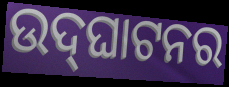
ଉଦ୍‍ଘାଟନର